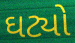
ઘટ્યો